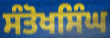
ਸੰਤੋਖਸਿੰਘ